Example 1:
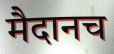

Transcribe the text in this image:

मैदानच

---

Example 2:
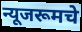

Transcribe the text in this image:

न्यूजरूमचे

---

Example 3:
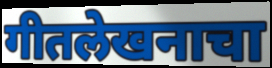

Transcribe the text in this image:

गीतलेखनाचा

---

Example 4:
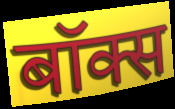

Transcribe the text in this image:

बॉक्स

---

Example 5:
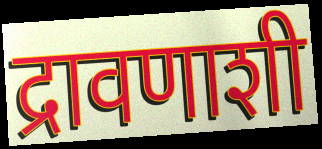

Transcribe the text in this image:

द्रावणाशी